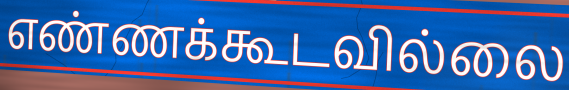
எண்ணக்கூடவில்லை